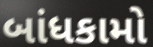
બાંધકામો